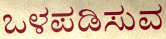
ಒಳಪಡಿಸುವ